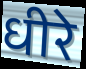
धीरे